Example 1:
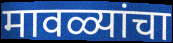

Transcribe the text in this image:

मावळ्यांचा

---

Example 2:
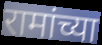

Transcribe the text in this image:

रामांच्या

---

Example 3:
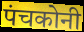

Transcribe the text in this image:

पंचकोनी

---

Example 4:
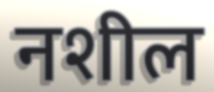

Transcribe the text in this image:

नशील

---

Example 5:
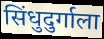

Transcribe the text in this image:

सिंधुदुर्गाला